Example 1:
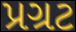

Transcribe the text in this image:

પ્રગ્રટ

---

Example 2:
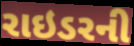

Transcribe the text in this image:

રાઇડરની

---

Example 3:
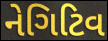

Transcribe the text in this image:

નેગિટિવ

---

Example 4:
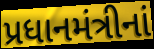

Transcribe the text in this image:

પ્રધાનમંત્રીનાં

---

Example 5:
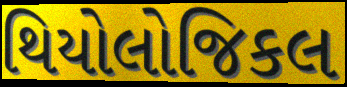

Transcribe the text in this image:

થિયોલોજિકલ